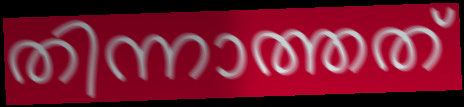
തിന്നാത്തത്